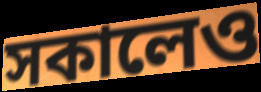
সকালেও